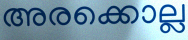
അരക്കൊല്ല